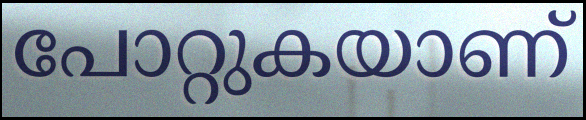
പോറ്റുകയാണ്